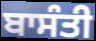
ਬਾਸੰਤੀ